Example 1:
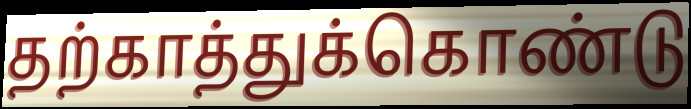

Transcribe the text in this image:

தற்காத்துக்கொண்டு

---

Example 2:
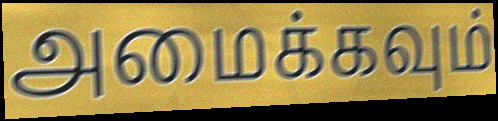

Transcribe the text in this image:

அமைக்கவும்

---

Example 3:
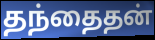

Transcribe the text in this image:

தந்தைதன்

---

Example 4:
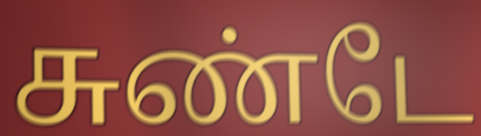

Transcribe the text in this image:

சுண்டே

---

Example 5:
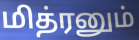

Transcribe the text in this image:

மித்ரனும்